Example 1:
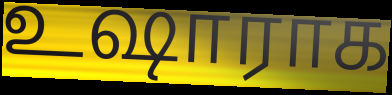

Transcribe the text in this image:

உஷாராக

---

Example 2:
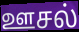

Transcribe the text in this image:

ஊசல்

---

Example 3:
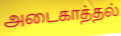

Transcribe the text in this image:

அடைகாத்தல்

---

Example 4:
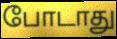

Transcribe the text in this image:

போடாது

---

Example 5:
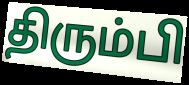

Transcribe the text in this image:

திரும்பி